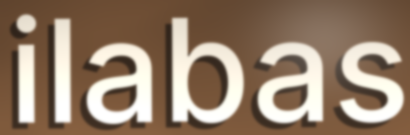
ilabas